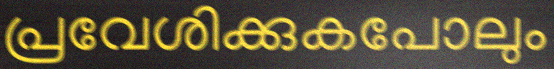
പ്രവേശിക്കുകപോലും